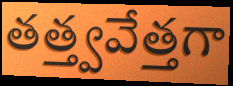
తత్త్వవేత్తగా